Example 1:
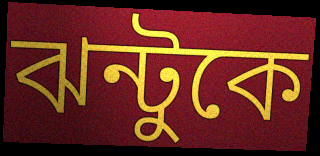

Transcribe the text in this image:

ঝন্টুকে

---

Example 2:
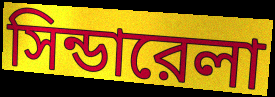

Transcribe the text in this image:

সিন্ডারেলা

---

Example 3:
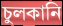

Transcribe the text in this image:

চুলকানি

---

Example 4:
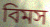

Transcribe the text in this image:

বিমস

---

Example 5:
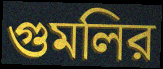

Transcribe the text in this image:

গুমলির